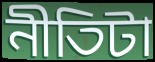
নীতিটা